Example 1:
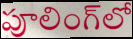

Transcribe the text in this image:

పూలింగ్‌లో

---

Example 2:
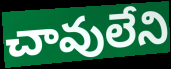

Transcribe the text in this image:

చావులేని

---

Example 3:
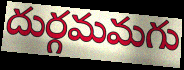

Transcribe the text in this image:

దుర్గమమగు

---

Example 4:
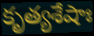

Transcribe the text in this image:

కృత్యశేషాః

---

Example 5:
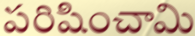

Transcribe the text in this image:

పరిషించామి